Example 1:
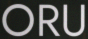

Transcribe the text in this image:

ORU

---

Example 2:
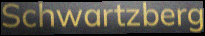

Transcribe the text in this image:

Schwartzberg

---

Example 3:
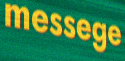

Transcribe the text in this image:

messege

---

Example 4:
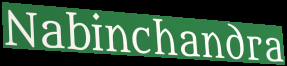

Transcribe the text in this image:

Nabinchandra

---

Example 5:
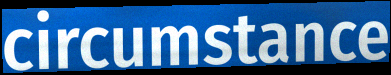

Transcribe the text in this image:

circumstance